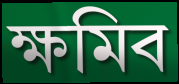
ক্ষমিব